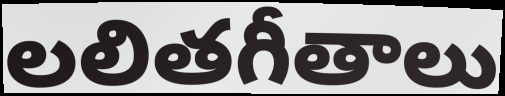
లలితగీతాలు